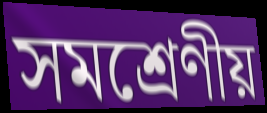
সমশ্রেণীয়